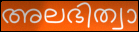
അലഭിത്വാ